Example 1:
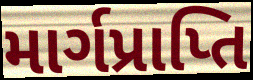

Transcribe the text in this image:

માર્ગપ્રાપ્તિ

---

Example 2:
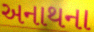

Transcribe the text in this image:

અનાથના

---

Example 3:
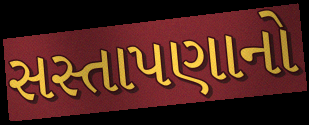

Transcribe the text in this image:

સસ્તાપણાનો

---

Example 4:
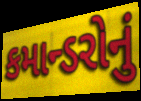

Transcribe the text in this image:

કમાન્ડરોનું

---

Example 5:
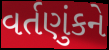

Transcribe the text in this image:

વર્તણુંકને